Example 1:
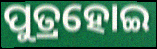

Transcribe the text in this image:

ପୁତ୍ରହୋଇ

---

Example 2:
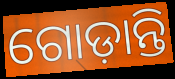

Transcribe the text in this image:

ଗୋଡ଼ାନ୍ତି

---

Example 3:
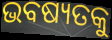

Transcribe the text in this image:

ଭବଷ୍ୟତକୁ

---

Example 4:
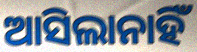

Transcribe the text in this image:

ଆସିଲାନାହିଁ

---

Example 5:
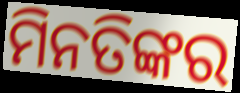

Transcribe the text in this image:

ମିନତିଙ୍କର